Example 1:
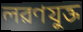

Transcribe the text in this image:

লৱণযুক্ত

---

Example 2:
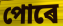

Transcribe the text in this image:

পোৰে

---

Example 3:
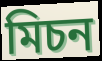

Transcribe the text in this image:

মিচন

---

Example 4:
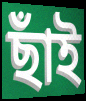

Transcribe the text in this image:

ছাঁই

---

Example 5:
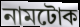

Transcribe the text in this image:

নামটোক